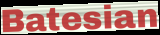
Batesian